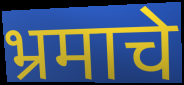
भ्रमाचे